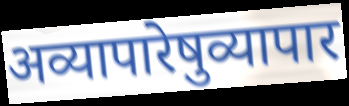
अव्यापारेषुव्यापार